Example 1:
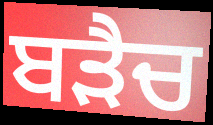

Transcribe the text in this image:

ਬੜੈਚ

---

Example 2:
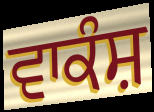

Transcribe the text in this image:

ਵਾਕੰਸ਼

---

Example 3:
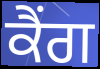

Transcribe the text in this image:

ਕੈਂਗ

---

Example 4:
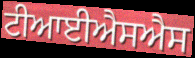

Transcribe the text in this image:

ਟੀਆਈਐਸਐਸ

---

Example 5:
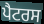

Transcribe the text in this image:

ਪੈਟਰਸ